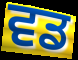
ਵਡ